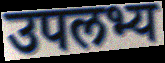
उपलभ्य